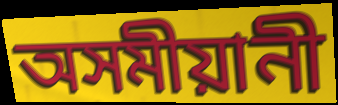
অসমীয়ানী